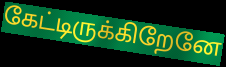
கேட்டிருக்கிறேனே